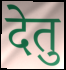
देतु